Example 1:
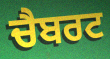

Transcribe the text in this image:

ਚੈਬਰਟ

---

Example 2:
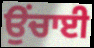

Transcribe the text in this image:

ਉਂਚਾਈ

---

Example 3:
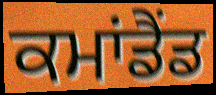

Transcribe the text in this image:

ਕਮਾਂਡੈਂਡ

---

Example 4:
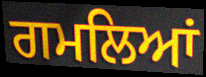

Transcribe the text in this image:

ਗਮਲਿਆਂ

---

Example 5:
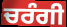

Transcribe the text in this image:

ਚਰੰਗੀ